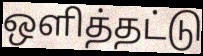
ஒளித்தட்டு